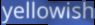
yellowish